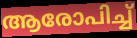
ആരോപിച്ച്